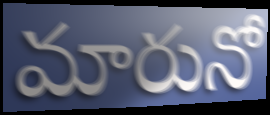
మారునో